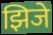
झिजे